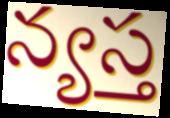
న్యస్త